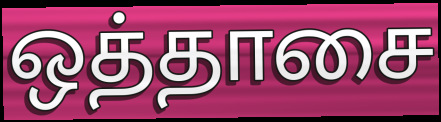
ஒத்தாசை